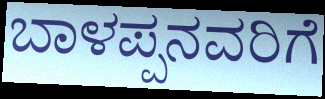
ಬಾಳಪ್ಪನವರಿಗೆ